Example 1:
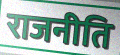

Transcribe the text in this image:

राजनीति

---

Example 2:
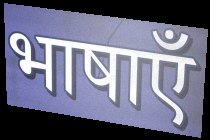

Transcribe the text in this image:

भाषाएँ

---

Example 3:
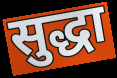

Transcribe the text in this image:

सुद्धा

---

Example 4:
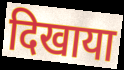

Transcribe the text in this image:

दिखाया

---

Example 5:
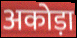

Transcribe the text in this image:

अकोड़ा